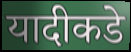
यादीकडे